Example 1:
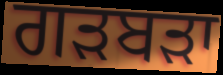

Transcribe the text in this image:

ਗੜਬੜਾ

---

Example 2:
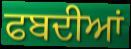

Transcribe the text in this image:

ਫਬਦੀਆਂ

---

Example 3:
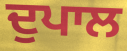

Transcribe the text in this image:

ਦੁਪਾਲ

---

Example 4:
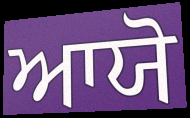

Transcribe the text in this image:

ਆਯੋ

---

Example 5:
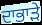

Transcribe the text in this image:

ਦਾਭਾੜੇ